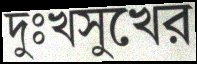
দুঃখসুখের